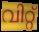
വിറ്റ്